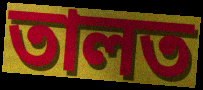
তালত